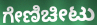
ಗೇಣಿಚೀಟು